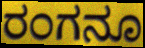
ರಂಗನೂ